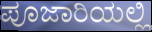
ಪೂಜಾರಿಯಲ್ಲಿ